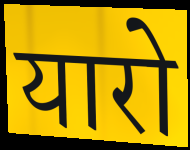
यारो